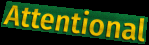
Attentional